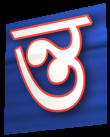
ন্ত